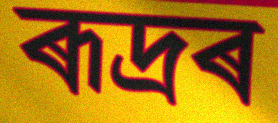
ৰূদ্ৰৰ